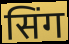
सिंग